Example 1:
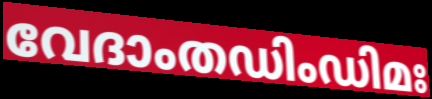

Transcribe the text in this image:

വേദാംതഡിംഡിമഃ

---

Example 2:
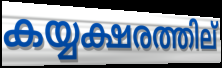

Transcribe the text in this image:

കയ്യക്ഷരത്തില്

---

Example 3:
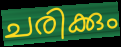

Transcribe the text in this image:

ചരിക്കും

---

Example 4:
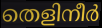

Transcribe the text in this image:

തെളിനീർ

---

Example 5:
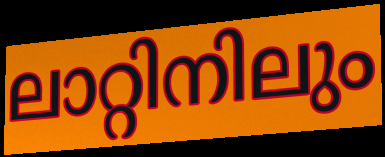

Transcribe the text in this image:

ലാറ്റിനിലും